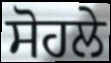
ਸੋਹਲੇ